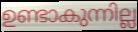
ഉണ്ടാകുന്നില്ല